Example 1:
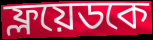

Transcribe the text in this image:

ফ্লয়েডকে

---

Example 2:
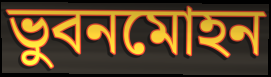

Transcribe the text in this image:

ভুবনমোহন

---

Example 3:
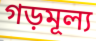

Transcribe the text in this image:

গড়মূল্য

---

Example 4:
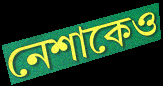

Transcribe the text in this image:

নেশাকেও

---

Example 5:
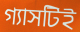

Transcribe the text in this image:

গ্যাসটিই